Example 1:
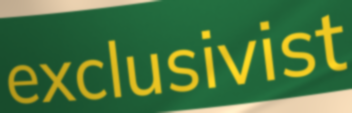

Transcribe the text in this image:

exclusivist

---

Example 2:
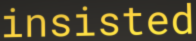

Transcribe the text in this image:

insisted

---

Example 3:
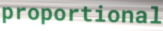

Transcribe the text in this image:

proportional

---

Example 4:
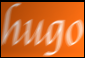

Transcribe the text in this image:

hugo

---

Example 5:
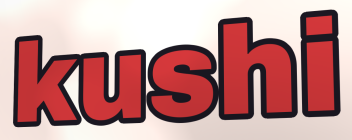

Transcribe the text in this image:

kushi